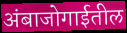
अंबाजोगाईतील